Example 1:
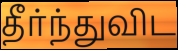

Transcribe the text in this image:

தீர்ந்துவிட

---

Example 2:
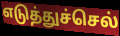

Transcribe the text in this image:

எடுத்துச்செல்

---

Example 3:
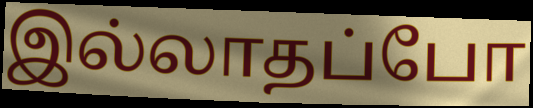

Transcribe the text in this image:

இல்லாதப்போ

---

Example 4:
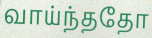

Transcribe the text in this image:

வாய்ந்ததோ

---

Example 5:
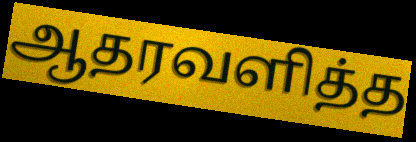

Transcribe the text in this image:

ஆதரவளித்த